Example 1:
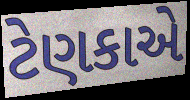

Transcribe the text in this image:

ટેણકાએ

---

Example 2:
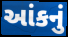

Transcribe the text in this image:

આંકનું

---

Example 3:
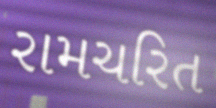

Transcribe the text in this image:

રામચરિત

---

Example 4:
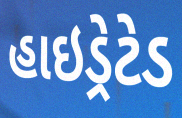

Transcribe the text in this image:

હાઇડ્રેટેડ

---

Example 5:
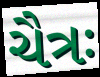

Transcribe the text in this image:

ચૈત્રઃ